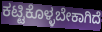
ಕಟ್ಟಿಕೊಳ್ಳಬೇಕಾಗಿದೆ